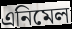
এনিমেল